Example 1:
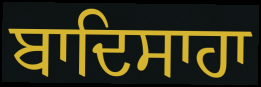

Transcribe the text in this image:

ਬਾਦਿਸਾਹਾ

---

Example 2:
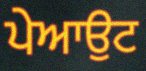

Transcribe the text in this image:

ਪੇਆਉਟ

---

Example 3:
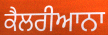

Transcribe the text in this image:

ਕੈਲਰੀਆਨਾ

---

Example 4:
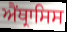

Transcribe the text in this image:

ਐਂਥ੍ਰਾਸਿਸ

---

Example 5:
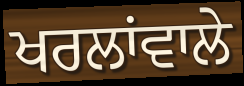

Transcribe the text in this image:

ਖਰਲਾਂਵਾਲੇ